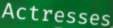
Actresses